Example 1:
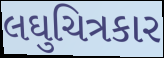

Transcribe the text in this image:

લઘુચિત્રકાર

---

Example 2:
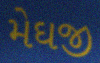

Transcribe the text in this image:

મેઘજી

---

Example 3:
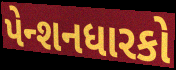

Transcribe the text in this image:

પેન્શનધારકો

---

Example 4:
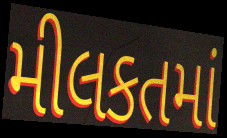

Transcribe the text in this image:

મીલકતમાં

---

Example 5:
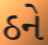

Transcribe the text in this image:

ઠને